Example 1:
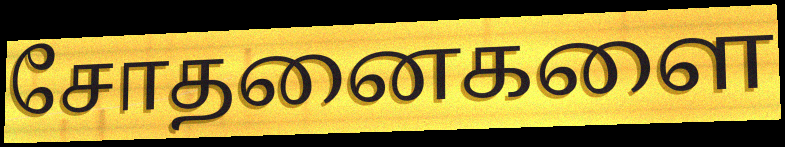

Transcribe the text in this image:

சோதனைகளை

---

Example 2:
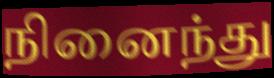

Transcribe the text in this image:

நினைந்து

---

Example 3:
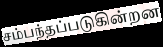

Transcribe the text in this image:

சம்பந்தப்படுகின்றன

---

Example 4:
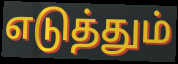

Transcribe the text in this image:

எடுத்தும்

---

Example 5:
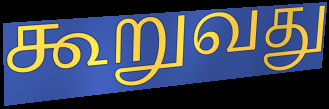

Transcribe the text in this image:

கூறுவது